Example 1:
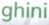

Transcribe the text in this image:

ghini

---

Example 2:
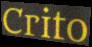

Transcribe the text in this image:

Crito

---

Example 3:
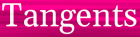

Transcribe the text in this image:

Tangents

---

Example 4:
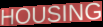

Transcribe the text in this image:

HOUSING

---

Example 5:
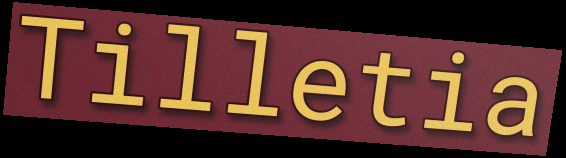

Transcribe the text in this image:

Tilletia